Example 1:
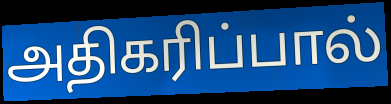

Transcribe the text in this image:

அதிகரிப்பால்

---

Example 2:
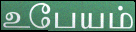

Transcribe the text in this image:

உபேயம்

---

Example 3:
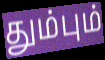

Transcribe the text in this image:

தும்பும்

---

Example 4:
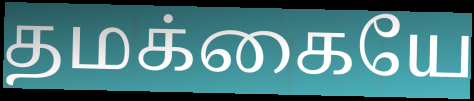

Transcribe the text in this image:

தமக்கையே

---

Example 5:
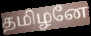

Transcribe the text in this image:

தமிழனே